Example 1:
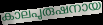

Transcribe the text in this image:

കാലപുരുഷനായ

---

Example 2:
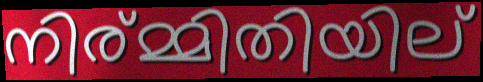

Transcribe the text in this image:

നിര്മ്മിതിയില്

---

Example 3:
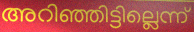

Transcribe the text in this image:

അറിഞ്ഞിട്ടില്ലെന്ന്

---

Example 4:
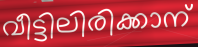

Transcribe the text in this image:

വീട്ടിലിരിക്കാന്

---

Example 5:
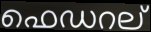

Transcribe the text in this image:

ഫെഡറല്